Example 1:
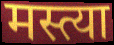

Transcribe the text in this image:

मस्त्या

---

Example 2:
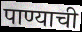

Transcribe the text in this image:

पाण्याची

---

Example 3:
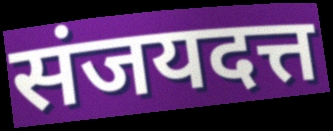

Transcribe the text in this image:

संजयदत्त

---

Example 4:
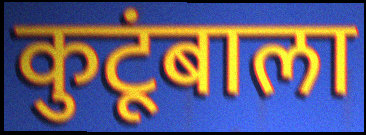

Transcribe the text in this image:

कुटूंबाला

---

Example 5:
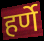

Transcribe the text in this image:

हर्णे